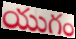
యుగం